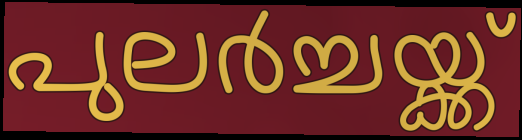
പുലർച്ചയ്ക്ക്